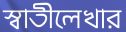
স্বাতীলেখার